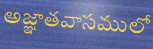
అజ్ఞాతవాసములో